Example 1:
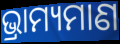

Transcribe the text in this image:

ଭ୍ରାମ୍ୟମାଣ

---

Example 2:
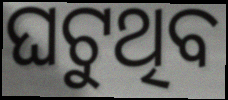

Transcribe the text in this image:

ଘଟୁଥିବ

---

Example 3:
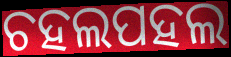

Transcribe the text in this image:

ଚହଲପହଲ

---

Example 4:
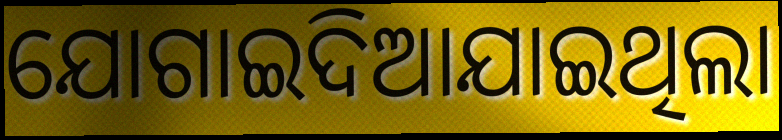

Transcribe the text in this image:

ଯୋଗାଇଦିଆଯାଇଥିଲା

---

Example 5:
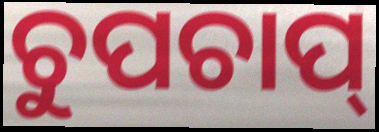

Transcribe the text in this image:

ଚୁପଚାପ୍